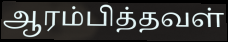
ஆரம்பித்தவள்